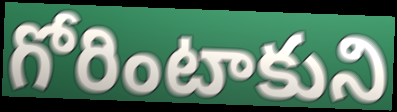
గోరింటాకుని